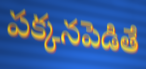
పక్కనపెడితే